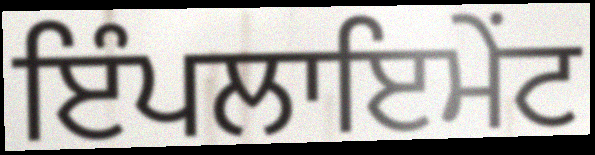
ਇੰਪਲਾਇਮੇਂਟ